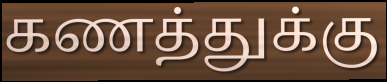
கணத்துக்கு